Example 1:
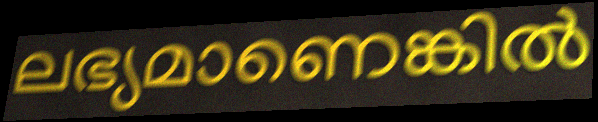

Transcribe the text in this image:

ലഭ്യമാണെങ്കിൽ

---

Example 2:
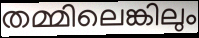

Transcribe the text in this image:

തമ്മിലെങ്കിലും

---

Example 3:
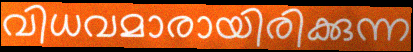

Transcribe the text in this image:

വിധവമാരായിരിക്കുന്ന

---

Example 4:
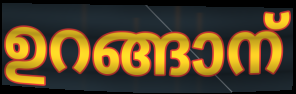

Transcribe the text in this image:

ഉറങ്ങാന്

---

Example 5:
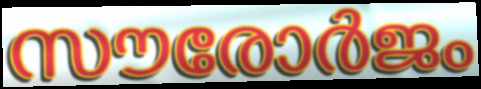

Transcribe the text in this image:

സൗരോർജം